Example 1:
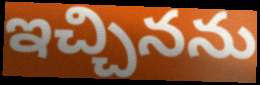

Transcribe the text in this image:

ఇచ్చినను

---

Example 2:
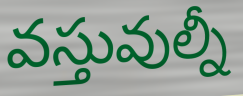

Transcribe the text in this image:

వస్తువుల్నీ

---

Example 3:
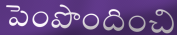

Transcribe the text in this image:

పెంపొందించి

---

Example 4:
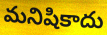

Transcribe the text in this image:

మనిషికాదు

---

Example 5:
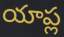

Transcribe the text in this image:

యాప్ల